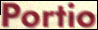
Portio